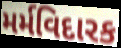
મર્મવિદારક